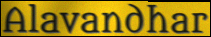
Alavandhar